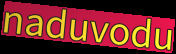
naduvodu